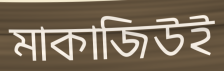
মাকাজিউই